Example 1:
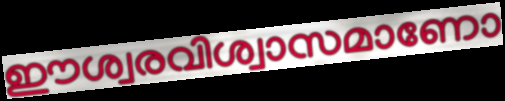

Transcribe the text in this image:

ഈശ്വരവിശ്വാസമാണോ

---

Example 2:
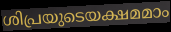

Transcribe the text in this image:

ശിപ്രയുടെയക്ഷമമാം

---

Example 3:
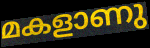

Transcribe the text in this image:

മകളാണു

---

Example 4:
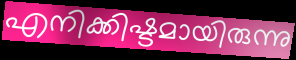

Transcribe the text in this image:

എനിക്കിഷ്ടമായിരുന്നു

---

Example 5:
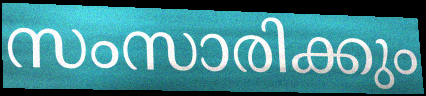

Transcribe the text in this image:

സംസാരിക്കും